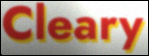
Cleary